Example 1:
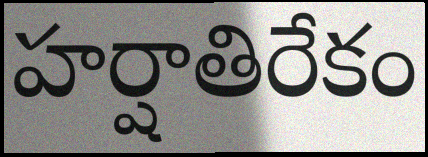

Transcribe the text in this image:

హర్షాతిరేకం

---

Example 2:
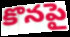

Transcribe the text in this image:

కొనపై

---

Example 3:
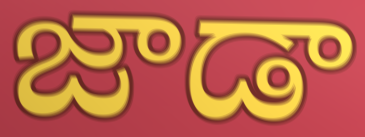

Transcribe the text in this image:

జాడా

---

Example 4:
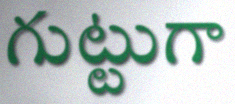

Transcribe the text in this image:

గుట్టుగా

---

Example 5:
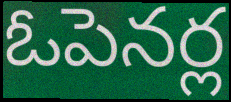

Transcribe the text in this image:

ఓపెనర్ల